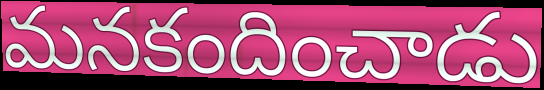
మనకందించాడు